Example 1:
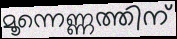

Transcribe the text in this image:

മൂന്നെണ്ണത്തിന്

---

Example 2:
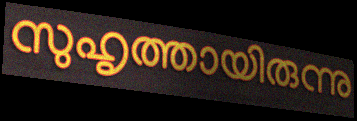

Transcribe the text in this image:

സുഹൃത്തായിരുന്നു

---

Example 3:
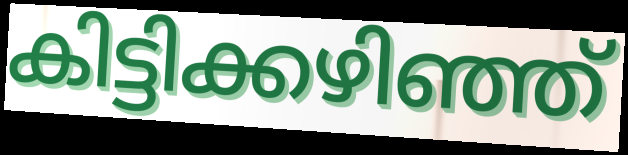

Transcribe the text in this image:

കിട്ടിക്കഴിഞ്ഞ്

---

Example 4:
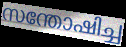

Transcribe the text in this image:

സന്തോഷിച്ച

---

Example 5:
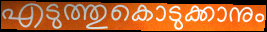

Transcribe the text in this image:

എടുത്തുകൊടുക്കാനും